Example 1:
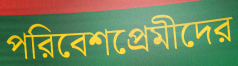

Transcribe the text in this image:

পরিবেশপ্রেমীদের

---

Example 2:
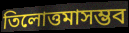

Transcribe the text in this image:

তিলোত্তমাসম্ভব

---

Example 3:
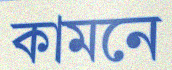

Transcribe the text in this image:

কামনে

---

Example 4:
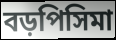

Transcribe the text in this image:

বড়পিসিমা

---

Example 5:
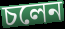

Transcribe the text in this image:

চলেন